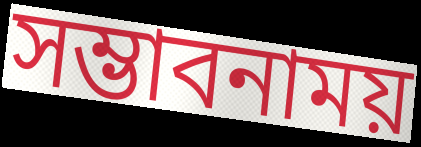
সম্ভাবনাময়